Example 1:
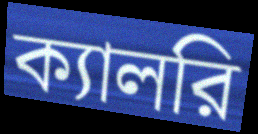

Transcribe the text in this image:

ক্যালরি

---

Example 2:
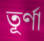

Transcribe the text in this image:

তূর্ণা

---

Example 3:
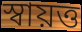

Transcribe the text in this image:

স্বায়ত্ত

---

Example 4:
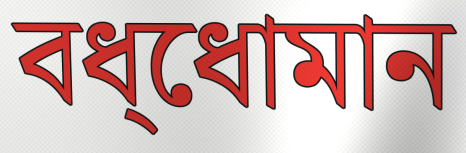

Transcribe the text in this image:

বধ্ধোমান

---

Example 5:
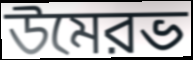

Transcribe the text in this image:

উমেরভ